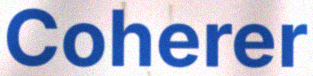
Coherer